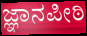
ಜ್ಞಾನಪೀಠಿ